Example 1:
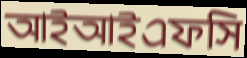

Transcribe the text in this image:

আইআইএফসি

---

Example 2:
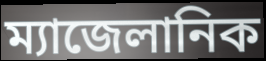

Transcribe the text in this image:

ম্যাজেলানিক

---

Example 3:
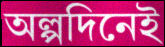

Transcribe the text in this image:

অল্পদিনেই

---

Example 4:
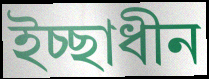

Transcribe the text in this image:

ইচ্ছাধীন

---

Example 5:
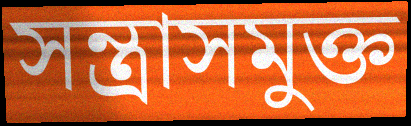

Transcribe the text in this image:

সন্ত্রাসমুক্ত